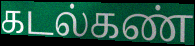
கடல்கண்